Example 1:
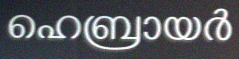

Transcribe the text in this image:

ഹെബ്രായർ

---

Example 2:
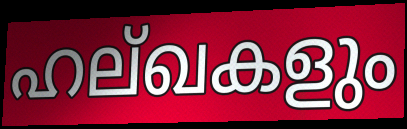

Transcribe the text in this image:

ഹല്ഖകളും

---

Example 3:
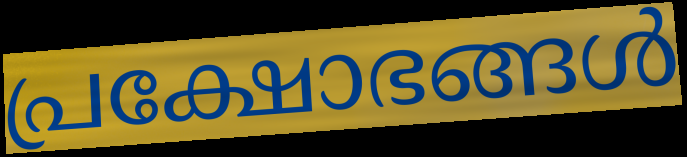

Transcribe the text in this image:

പ്രക്ഷോഭങ്ങൾ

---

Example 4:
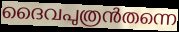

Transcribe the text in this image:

ദൈവപുത്രൻതന്നെ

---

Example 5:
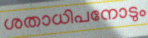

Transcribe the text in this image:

ശതാധിപനോടും